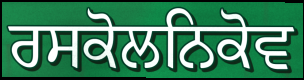
ਰਸਕੋਲਨਿਕੋਵ